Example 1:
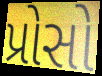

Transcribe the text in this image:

પ્રોસો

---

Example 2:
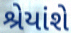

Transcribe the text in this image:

શ્રેયાંશે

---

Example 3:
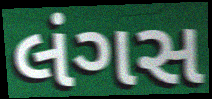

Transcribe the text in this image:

લંગસ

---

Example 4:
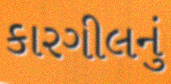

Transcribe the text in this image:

કારગીલનું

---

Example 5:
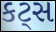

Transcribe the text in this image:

કટ્સ